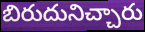
బిరుదునిచ్చారు